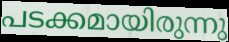
പടക്കമായിരുന്നു